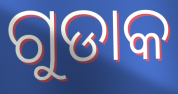
ଗୁଡାକ